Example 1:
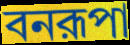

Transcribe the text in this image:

বনরূপা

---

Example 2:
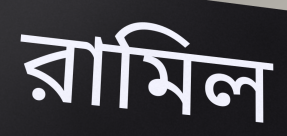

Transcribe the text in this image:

রামিল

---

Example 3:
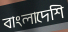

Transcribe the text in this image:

বাংলাদেশি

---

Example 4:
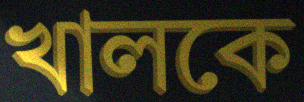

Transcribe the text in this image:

খালকে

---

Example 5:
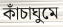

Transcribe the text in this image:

কাঁচাঘুমে